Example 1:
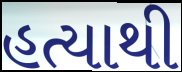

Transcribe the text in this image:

હત્યાથી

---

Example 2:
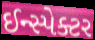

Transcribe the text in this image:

ઈન્સ્પેક્ટર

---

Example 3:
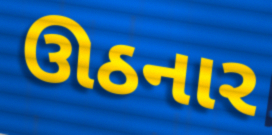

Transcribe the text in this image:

ઊઠનાર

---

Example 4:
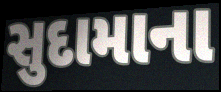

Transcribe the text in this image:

સુદામાના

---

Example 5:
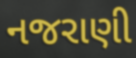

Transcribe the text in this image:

નજરાણી